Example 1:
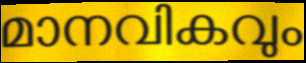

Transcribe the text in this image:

മാനവികവും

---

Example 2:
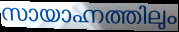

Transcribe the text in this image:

സായാഹ്നത്തിലും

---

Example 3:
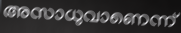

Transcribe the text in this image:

അസാധുവാണെന്ന്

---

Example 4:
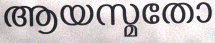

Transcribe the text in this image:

ആയസ്മതോ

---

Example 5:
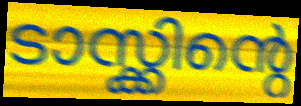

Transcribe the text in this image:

ടാസ്ക്കിന്റെ